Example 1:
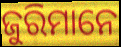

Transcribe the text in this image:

ଜୁରିମାନେ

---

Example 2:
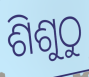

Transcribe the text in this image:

ଶିଶୁଠୁ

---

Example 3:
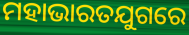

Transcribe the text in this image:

ମହାଭାରତଯୁଗରେ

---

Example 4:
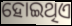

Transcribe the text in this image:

ହୋଇଥିଏ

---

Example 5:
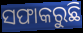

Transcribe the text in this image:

ସଫାକରୁଛି